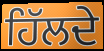
ਹਿੱਲਦੇ